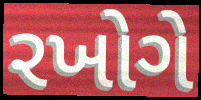
રખોગે